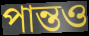
পান্তও